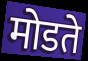
मोडते